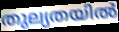
തുല്യതയിൽ